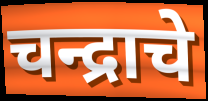
चन्द्राचे